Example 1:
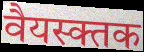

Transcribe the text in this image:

वैयस्क्तक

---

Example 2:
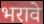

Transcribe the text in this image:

भरावे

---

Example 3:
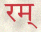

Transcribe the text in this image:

रम्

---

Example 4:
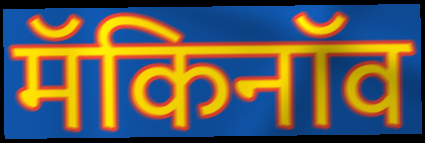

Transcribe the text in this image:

मॅकिनॉव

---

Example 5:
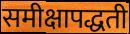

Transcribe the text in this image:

समीक्षापद्धती